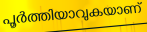
പൂർത്തിയാവുകയാണ്